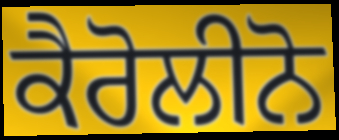
ਕੈਰੋਲੀਨੋ